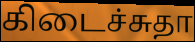
கிடைச்சுதா